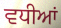
ਵਧੀਆਂ